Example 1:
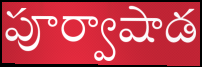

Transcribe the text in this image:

పూర్వాషాడ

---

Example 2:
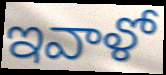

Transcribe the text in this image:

ఇవాళో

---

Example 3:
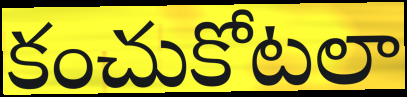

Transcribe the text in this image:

కంచుకోటలా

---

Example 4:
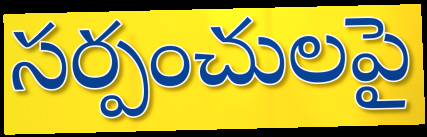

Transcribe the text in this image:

సర్పంచులపై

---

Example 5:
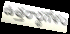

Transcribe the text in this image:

ఉత్తరార్థగోళం